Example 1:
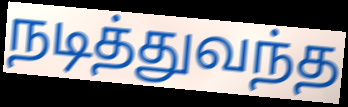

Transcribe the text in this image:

நடித்துவந்த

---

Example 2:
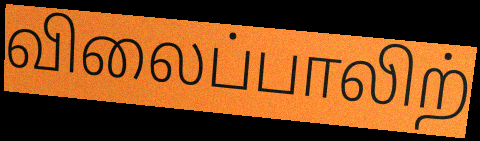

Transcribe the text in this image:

விலைப்பாலிற்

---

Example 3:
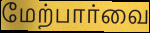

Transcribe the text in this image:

மேற்பார்வை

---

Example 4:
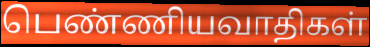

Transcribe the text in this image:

பெண்ணியவாதிகள்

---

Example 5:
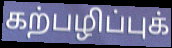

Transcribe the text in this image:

கற்பழிப்புக்